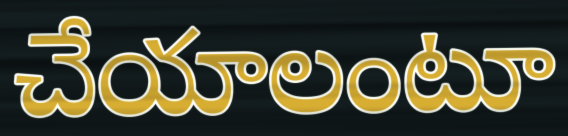
చేయాలంటూ